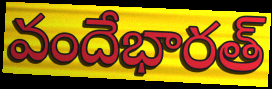
వందేభారత్